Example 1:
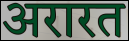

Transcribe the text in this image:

अरारत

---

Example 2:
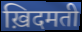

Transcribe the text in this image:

ख़िदमती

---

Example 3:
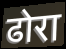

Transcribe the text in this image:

ढोरा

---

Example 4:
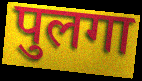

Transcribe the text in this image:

पुलगा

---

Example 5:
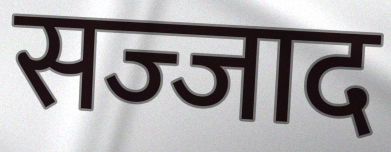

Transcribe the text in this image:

सज्‍जाद